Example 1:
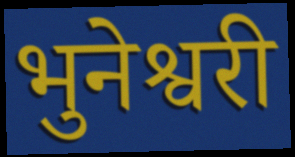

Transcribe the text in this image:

भुनेश्वरी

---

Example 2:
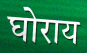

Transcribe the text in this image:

घोराय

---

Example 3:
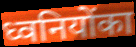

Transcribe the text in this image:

ध्वनियोंका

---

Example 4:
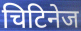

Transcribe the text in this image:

चिटिनेज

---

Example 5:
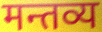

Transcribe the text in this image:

मन्तव्य